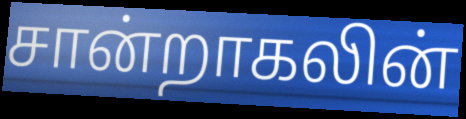
சான்றாகலின்